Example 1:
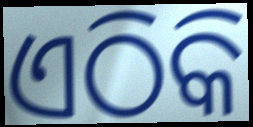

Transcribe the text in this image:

ଏଠିକି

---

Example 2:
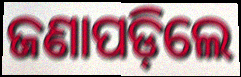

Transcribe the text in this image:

ଜଣାପଡ଼ିଲେ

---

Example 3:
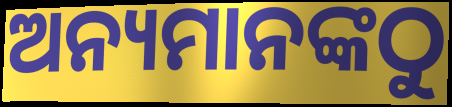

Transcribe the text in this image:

ଅନ୍ୟମାନଙ୍କଠୁ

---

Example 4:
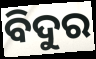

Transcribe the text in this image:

ବିଦୁର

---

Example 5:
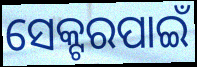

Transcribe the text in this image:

ସେକ୍ଟରପାଇଁ